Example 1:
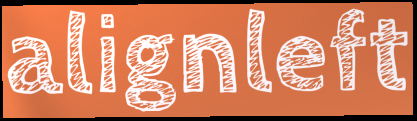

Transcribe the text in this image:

alignleft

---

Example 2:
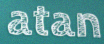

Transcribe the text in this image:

atan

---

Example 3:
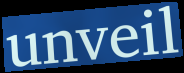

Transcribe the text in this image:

unveil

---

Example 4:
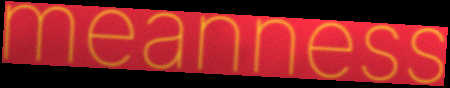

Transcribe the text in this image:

meanness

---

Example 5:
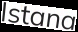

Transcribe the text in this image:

Istana